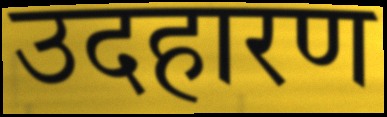
उदहारण